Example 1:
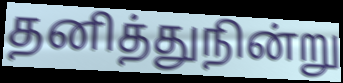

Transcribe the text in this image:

தனித்துநின்று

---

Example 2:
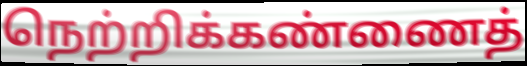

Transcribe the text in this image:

நெற்றிக்கண்ணைத்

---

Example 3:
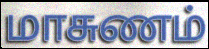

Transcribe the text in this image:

மாசுணம்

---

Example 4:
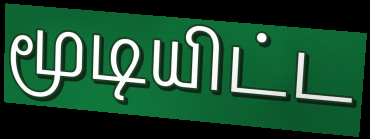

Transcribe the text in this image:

மூடியிட்ட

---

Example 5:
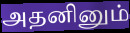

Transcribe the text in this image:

அதனினும்